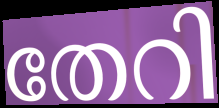
തേറി